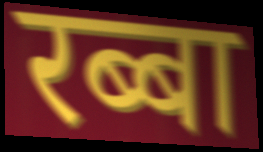
रब्बा